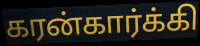
கரன்கார்க்கி